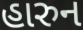
હારુન